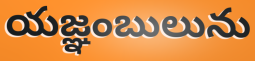
యజ్ఞంబులును